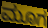
ಮೂಗ